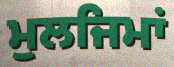
ਮੁਲਜਿਮਾਂ